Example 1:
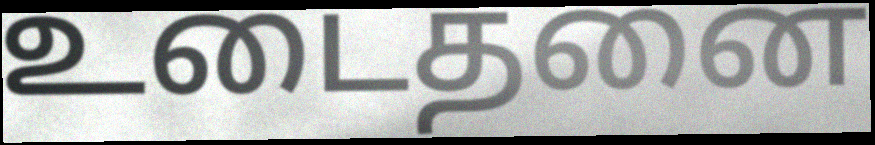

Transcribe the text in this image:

உடைதனை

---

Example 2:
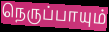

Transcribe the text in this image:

நெருப்பாயும்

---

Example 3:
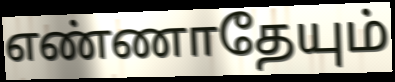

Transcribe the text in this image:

எண்ணாதேயும்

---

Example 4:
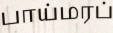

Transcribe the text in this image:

பாய்மரப்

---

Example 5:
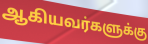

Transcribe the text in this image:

ஆகியவர்களுக்கு